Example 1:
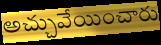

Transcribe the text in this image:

అచ్చువేయించారు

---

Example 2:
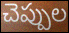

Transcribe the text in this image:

చెప్పుల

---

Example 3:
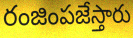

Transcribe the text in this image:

రంజింపజేస్తారు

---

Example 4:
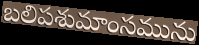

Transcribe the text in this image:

బలిపశుమాంసమును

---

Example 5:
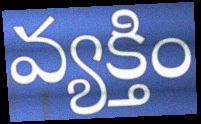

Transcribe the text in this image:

వ్యక్తిం